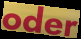
oder